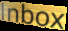
Inbox